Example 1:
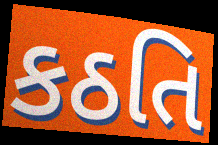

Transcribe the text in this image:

કઠતિ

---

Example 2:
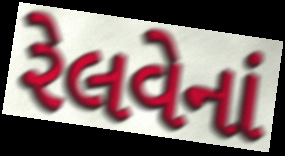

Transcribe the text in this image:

રેલવેનાં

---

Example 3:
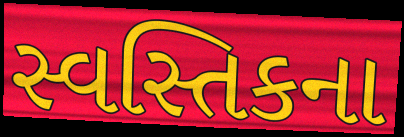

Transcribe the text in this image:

સ્વસ્તિકના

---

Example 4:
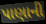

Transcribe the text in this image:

પાણાની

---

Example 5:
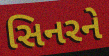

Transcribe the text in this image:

સિનરને